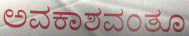
ಅವಕಾಶವಂತೂ